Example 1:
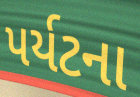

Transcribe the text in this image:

પર્યટના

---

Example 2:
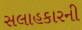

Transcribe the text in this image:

સલાહકારની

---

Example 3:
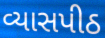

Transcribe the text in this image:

વ્યાસપીઠ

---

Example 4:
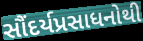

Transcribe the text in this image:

સૌંદર્યપ્રસાધનોથી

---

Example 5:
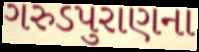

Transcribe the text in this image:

ગરુડપુરાણના